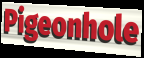
Pigeonhole